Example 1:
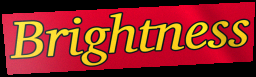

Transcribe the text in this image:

Brightness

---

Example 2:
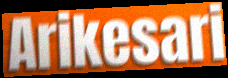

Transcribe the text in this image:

Arikesari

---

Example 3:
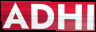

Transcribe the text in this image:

ADHI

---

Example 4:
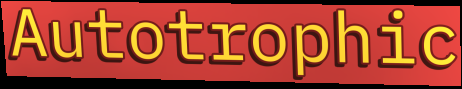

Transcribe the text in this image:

Autotrophic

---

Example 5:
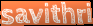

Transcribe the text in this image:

savithri